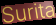
Surita